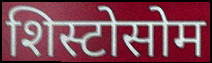
शिस्टोसोम